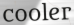
cooler